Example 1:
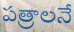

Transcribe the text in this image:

పత్రాలనే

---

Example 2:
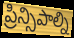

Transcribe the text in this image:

ప్రిన్సిపాల్ని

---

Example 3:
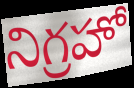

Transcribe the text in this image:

నిగ్రహో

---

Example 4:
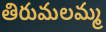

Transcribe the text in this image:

తిరుమలమ్మ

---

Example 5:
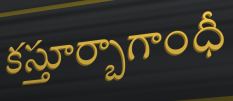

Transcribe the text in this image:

కస్తూర్బాగాంధీ